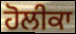
ਹੋਲੀਕਾ